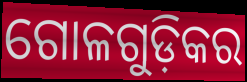
ଗୋଳଗୁଡ଼ିକର